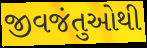
જીવજંતુઓથી